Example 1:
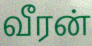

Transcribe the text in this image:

வீரன்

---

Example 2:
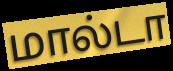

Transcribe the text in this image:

மால்டா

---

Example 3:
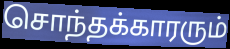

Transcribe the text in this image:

சொந்தக்காரரும்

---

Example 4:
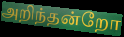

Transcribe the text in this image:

அறிந்தன்றோ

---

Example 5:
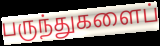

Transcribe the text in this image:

பருந்துகளைப்